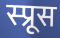
स्प्रूस